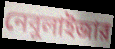
নেবুলাইজার